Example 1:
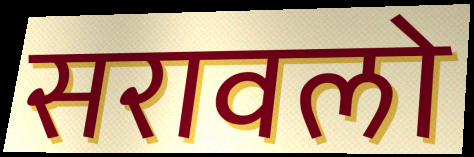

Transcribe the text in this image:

सरावलो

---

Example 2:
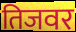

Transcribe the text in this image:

तिजवर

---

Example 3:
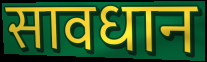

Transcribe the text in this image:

सावधान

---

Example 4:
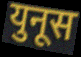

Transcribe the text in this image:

युनूस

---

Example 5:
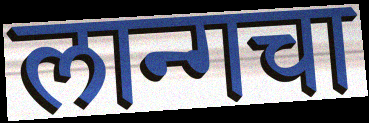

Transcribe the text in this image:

लान्गचा